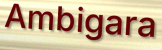
Ambigara